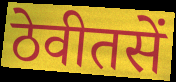
ठेवीतसें